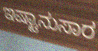
ಇಷ್ಟಾನುಸಾರ